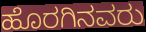
ಹೊರಗಿನವರು